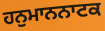
ਹਨੁਮਾਨਨਾਟਕ